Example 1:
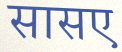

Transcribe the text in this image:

सासए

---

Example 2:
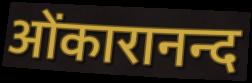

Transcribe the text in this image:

ओंकारानन्द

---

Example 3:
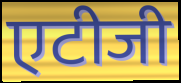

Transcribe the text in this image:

एटीजी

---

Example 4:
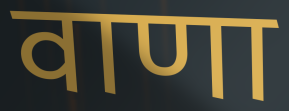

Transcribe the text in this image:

वाणा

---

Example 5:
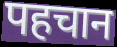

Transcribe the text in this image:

पहचान